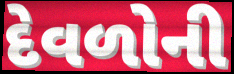
દેવળોની